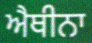
ਐਥੀਨਾ